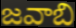
జవాబి